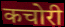
कचोरी